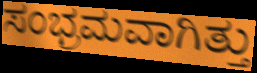
ಸಂಭ್ರಮವಾಗಿತ್ತು